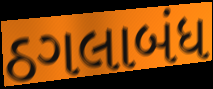
ઠગલાબંધ